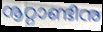
നൂറ്റാണ്ടിനു